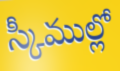
స్కీముల్లో